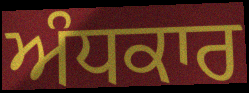
ਅੰਧਕਾਰ